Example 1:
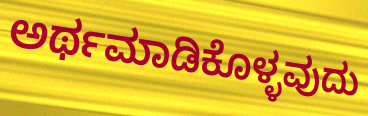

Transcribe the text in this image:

ಅರ್ಥಮಾಡಿಕೊಳ್ಳವುದು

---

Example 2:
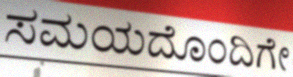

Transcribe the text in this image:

ಸಮಯದೊಂದಿಗೇ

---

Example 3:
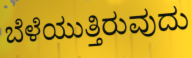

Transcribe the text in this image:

ಬೆಳೆಯುತ್ತಿರುವುದು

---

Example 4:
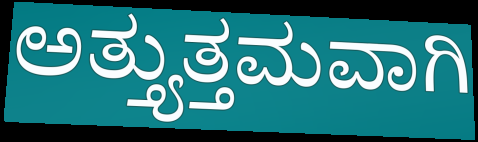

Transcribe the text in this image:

ಅತ್ತ್ಯುತ್ತಮವಾಗಿ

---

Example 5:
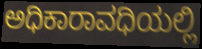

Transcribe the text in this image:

ಅಧಿಕಾರಾವಧಿಯಲ್ಲಿ